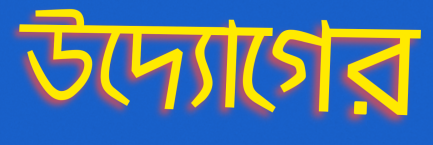
উদ্যোগের